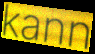
kann